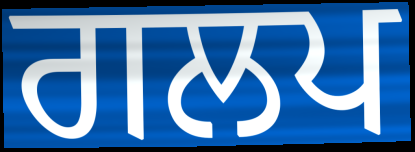
ਗਲਪ